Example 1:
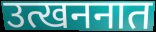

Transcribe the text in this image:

उत्खननात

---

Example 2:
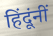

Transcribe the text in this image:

हिंदूंनीं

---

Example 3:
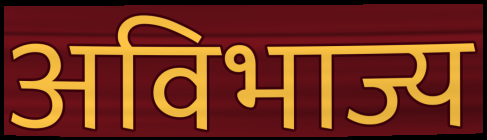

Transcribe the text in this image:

अविभाज्य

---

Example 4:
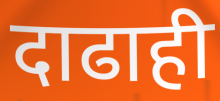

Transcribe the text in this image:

दाढाही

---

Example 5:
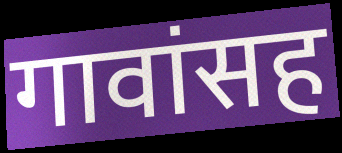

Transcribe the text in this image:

गावांसह